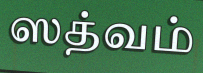
ஸத்வம்